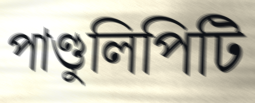
পাণ্ডুলিপিটি